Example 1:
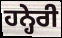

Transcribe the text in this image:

ਹਨ੍ਹੇਰੀ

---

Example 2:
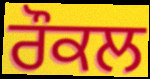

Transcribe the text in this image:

ਰੌਕਲ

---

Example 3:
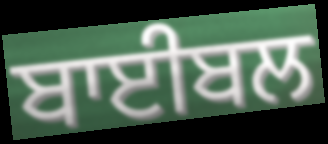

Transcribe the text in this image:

ਬਾਈਬਲ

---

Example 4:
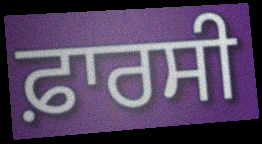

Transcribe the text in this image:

ਫ਼ਾਰਸੀ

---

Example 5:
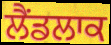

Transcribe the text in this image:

ਲੈਂਡਲਾਕ